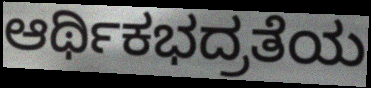
ಆರ್ಥಿಕಭದ್ರತೆಯ